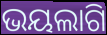
ଭୟଲାଗି